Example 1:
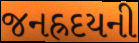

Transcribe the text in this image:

જનહ્રદયની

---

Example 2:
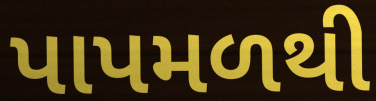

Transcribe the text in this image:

પાપમળથી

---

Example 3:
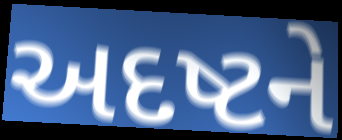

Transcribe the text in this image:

અદષ્ટને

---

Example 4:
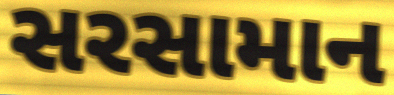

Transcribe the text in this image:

સરસામાન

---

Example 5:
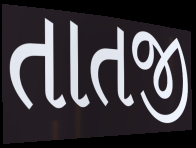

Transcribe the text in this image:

તાતજી